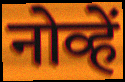
नोव्हें